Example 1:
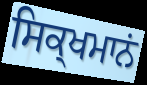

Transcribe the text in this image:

ਸਿਕ੍ਖਮਾਨਂ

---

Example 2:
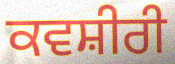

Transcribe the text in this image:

ਕਵਸ਼ੀਰੀ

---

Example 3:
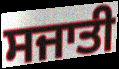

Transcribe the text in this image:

ਸਜਾਤੀ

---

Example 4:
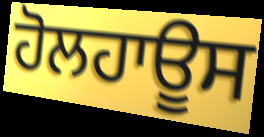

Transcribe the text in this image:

ਹੋਲਹਾਊਸ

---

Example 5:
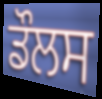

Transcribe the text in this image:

ਡੌਲਸ